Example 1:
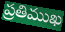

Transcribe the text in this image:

ప్రతిముఖ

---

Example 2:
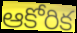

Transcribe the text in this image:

ఆకోరిక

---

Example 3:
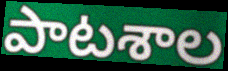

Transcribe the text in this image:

పాటశాల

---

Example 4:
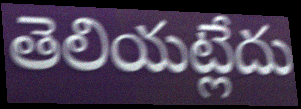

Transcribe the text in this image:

తెలియట్లేదు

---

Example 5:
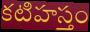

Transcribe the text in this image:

కటిహస్తం